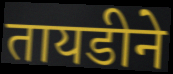
तायडीने